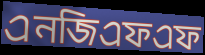
এনজিএফএফ